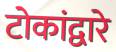
टोकांद्वारे